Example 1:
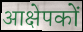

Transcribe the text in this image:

आक्षेपकों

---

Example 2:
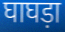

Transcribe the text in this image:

घाघड़ा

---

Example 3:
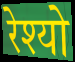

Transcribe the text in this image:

रेश्यो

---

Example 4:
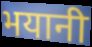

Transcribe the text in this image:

भयानी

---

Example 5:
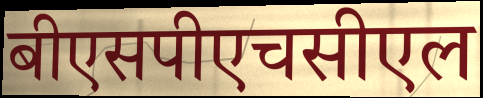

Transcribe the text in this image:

बीएसपीएचसीएल